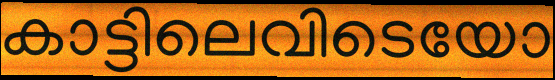
കാട്ടിലെവിടെയോ